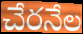
చేరనేల